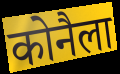
कोनैला